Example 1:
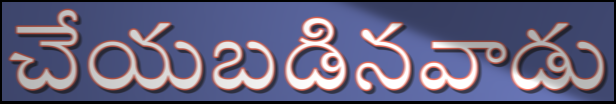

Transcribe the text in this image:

చేయబడినవాడు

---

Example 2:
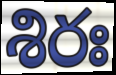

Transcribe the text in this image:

శిరః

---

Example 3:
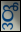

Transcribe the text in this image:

ర్లో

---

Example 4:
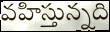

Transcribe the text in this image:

వహిస్తున్నది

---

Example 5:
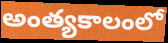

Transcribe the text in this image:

అంత్యకాలంలో